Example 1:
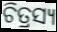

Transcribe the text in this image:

ଚିତ୍ରସ୍ୟ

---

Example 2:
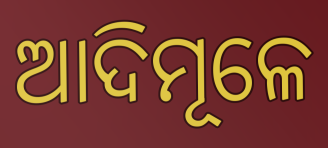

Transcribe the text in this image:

ଆଦିମୂଳେ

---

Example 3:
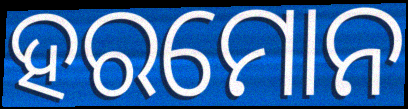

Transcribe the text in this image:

ହରମୋନ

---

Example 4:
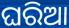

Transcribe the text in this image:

ଘରିଆ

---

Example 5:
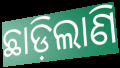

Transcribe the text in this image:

ଛାଡ଼ିଲାଣି